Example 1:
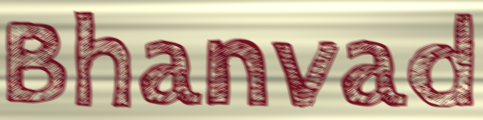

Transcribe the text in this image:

Bhanvad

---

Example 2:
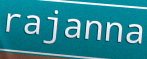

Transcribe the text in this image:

rajanna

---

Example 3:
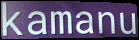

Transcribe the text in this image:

kamanu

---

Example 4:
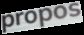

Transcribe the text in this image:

propos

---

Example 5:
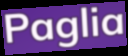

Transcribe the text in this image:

Paglia